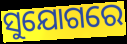
ସୁଯୋଗରେ